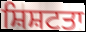
ਸ਼ਿਸ਼ਟਤਾ